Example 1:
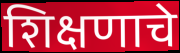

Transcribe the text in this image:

शिक्षणाचे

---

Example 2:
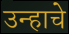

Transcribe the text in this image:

उन्हाचे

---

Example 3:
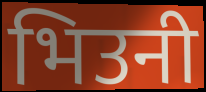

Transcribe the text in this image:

भिउनी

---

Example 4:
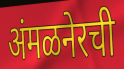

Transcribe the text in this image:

अंमळनेरची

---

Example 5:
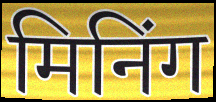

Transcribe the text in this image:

मिनिंग